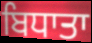
ਬਿਧਾਤਾ